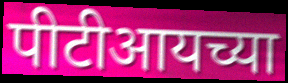
पीटीआयच्या